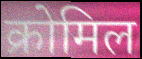
क्रोमिल